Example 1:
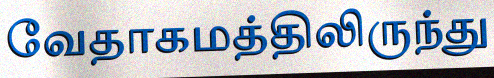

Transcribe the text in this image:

வேதாகமத்திலிருந்து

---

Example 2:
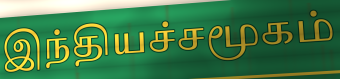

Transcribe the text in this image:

இந்தியச்சமூகம்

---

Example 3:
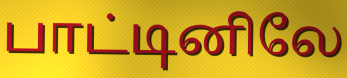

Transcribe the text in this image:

பாட்டினிலே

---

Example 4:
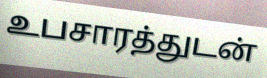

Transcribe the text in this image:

உபசாரத்துடன்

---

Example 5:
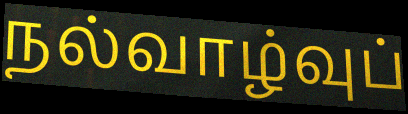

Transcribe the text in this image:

நல்வாழ்வுப்